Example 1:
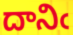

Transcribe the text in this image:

దానిఁ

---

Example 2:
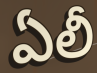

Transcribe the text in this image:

ఏలీ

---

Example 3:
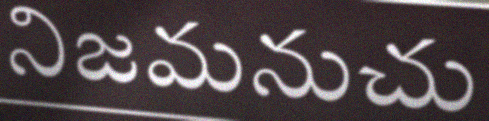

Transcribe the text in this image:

నిజమనుచు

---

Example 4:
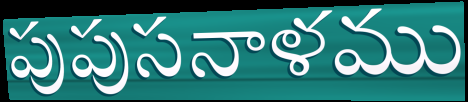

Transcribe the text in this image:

పుపుసనాళము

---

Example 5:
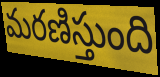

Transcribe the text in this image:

మరణిస్తుంది